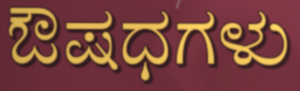
ಔಷಧಗಳು